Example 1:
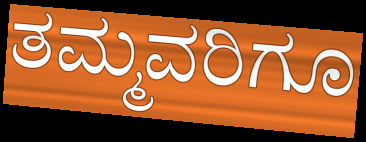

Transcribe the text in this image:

ತಮ್ಮವರಿಗೂ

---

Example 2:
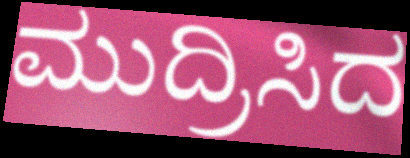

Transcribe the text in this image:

ಮುದ್ರಿಸಿದ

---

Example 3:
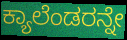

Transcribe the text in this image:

ಕ್ಯಾಲೆಂಡರನ್ನೇ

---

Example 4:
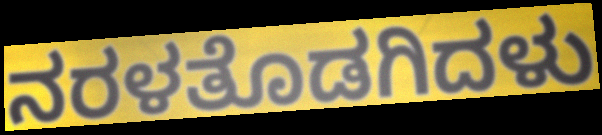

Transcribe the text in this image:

ನರಳತೊಡಗಿದಳು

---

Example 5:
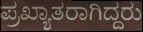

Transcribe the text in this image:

ಪ್ರಖ್ಯಾತರಾಗಿದ್ದರು